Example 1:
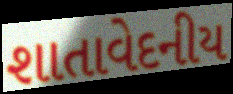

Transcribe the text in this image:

શાતાવેદનીય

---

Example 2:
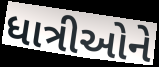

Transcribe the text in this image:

ધાત્રીઓને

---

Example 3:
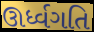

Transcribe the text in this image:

ઊર્ધ્વગતિ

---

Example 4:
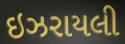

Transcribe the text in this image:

ઇઝરાયલી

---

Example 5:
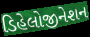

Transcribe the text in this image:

ડિહેલોજીનેશન